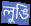
লুঙি